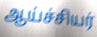
ஆய்ச்சியர்